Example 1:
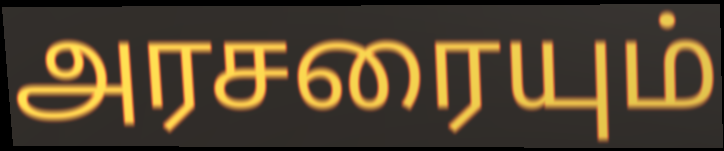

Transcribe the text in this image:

அரசரையும்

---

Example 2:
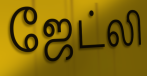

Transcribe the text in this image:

ஜேட்லி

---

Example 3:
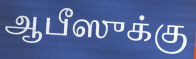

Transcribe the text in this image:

ஆபீஸுக்கு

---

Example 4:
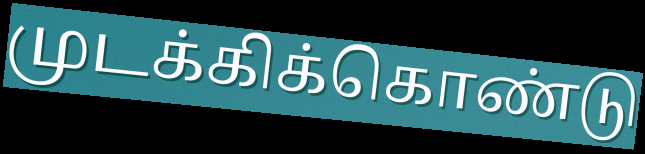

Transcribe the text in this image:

முடக்கிக்கொண்டு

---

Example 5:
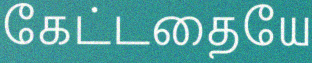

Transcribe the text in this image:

கேட்டதையே